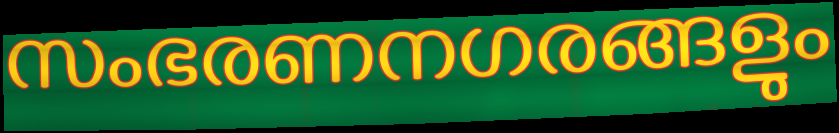
സംഭരണനഗരങ്ങളും